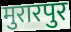
मुरारपुर